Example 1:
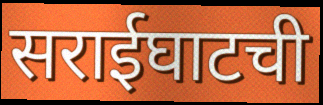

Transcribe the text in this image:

सराईघाटची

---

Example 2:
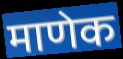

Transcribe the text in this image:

माणेक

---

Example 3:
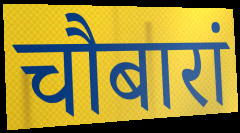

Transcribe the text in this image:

चौबारां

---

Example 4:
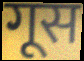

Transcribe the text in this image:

गूस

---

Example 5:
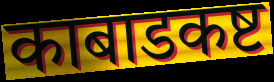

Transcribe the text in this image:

काबाडकष्ट